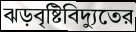
ঝড়বৃষ্টিবিদ্যুতের